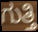
ಗುತ್ತಿ